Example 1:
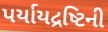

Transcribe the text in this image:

પર્યાયદ્રષ્ટિની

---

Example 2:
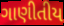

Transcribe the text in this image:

ગાણીતીય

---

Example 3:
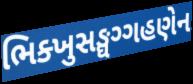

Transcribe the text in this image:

ભિક્ખુસઙ્ઘગ્ગહણેન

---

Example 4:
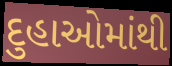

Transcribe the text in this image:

દુહાઓમાંથી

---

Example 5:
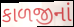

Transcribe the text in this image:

કાળજીનાં